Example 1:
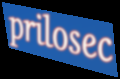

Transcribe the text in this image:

prilosec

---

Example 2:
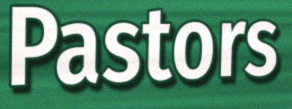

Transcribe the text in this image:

Pastors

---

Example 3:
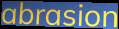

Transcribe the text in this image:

abrasion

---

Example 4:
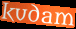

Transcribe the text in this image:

kudam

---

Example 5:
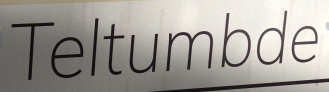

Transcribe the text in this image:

Teltumbde